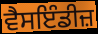
ਵੈਸਇੰਡੀਜ਼